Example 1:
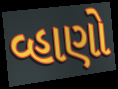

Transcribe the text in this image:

વ્હાણો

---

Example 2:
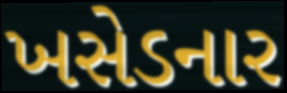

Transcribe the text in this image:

ખસેડનાર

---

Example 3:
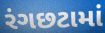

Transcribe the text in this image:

રંગછટામાં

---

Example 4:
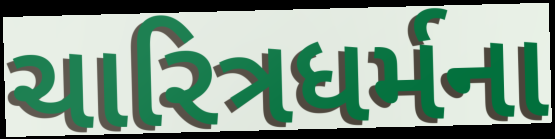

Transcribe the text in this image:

ચારિત્રધર્મના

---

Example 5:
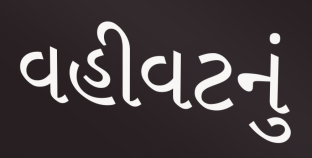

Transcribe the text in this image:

વહીવટનું